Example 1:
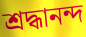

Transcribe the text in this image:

শ্ৰদ্ধানন্দ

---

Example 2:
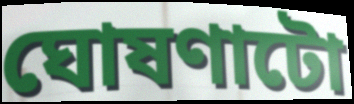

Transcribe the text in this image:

ঘোষণাটো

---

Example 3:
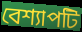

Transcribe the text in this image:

বেশ্যাপটি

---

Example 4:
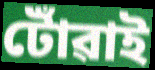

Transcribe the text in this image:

টোঁৱাই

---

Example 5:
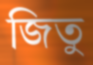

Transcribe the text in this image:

জিতু